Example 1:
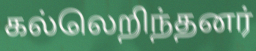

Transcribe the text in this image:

கல்லெறிந்தனர்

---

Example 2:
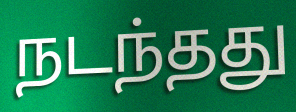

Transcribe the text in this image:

நடந்தது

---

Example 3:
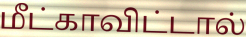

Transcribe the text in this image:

மீட்காவிட்டால்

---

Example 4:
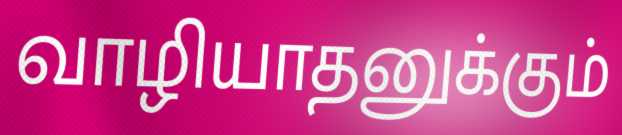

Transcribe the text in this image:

வாழியாதனுக்கும்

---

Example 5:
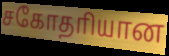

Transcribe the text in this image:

சகோதரியான